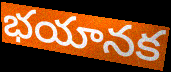
భయానక